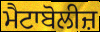
ਮੈਟਾਬੋਲੀਜ਼